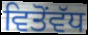
ਵਿਤੋਂਵੱਧ